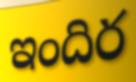
ఇందిర